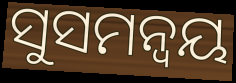
ସୁସମନ୍ଵୟ